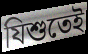
যিশুতেই